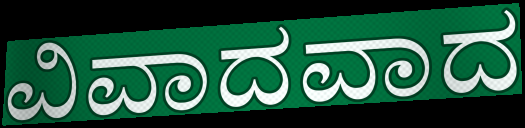
ವಿವಾದವಾದ